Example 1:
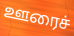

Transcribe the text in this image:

ஊரைச்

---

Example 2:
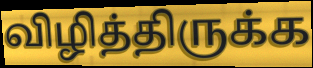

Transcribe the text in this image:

விழித்திருக்க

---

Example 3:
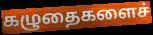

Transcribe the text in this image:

கழுதைகளைச்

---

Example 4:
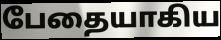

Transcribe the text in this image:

பேதையாகிய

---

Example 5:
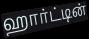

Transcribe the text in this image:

ஹார்ட்டின்